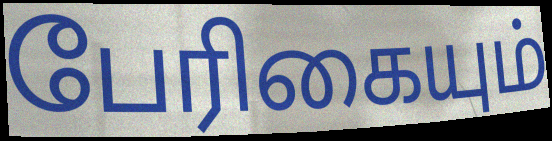
பேரிகையும்